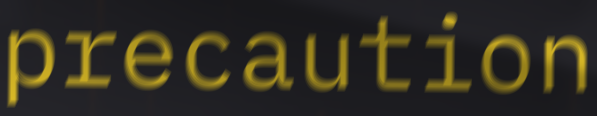
precaution